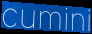
cumini